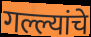
गल्ल्यांचे